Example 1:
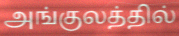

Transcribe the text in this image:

அங்குலத்தில்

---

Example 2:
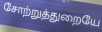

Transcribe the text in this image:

சோற்றுத்துறையே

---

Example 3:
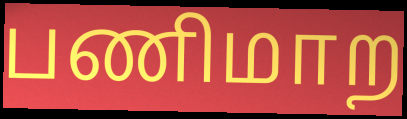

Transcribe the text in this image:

பணிமாற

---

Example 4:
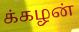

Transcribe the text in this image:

க்கழன்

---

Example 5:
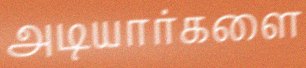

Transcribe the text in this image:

அடியார்களை